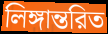
লিঙ্গান্তরিত